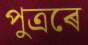
পুত্ৰৰে